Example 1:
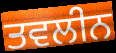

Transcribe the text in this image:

ਤਵਲੀਨ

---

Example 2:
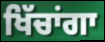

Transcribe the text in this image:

ਖਿੱਚਾਂਗਾ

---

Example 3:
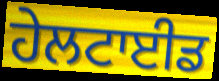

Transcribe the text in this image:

ਹੇਲਟਾਈਡ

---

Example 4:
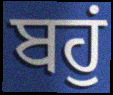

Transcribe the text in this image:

ਬਹੁਂ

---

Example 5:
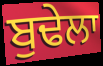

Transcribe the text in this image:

ਬੁਢੇਲਾ